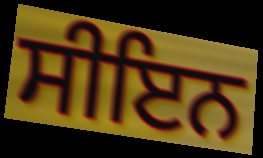
ਸੀਇਨ